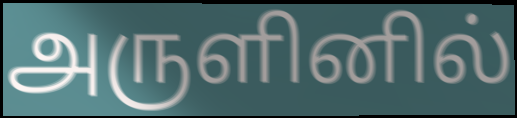
அருளினில்